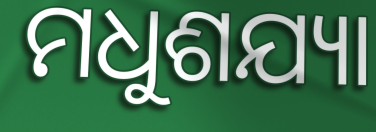
ମଧୁଶଯ୍ୟା